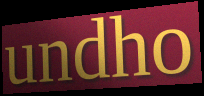
undho